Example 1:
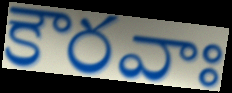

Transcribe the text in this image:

కౌరవాః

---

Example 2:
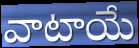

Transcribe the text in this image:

వాటాయే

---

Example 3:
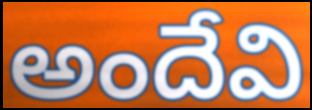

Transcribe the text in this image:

అందేవి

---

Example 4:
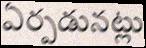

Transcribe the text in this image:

ఏర్పడునట్లు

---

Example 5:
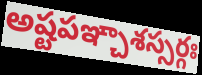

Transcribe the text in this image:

అష్టపఞ్చాశస్సర్గః